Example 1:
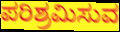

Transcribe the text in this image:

ಪರಿಶ್ರಮಿಸುವ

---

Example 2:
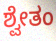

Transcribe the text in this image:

ಶ್ವೇತಂ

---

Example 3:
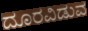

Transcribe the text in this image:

ದೂರವಿಡುವ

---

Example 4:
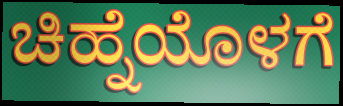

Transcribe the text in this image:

ಚಿಹ್ನೆಯೊಳಗೆ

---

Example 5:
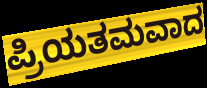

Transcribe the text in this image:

ಪ್ರಿಯತಮವಾದ